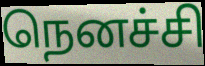
நெனச்சி